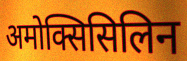
अमोक्सिसिलिन